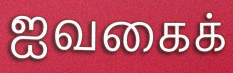
ஐவகைக்